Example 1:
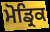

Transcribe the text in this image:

ਮੋਡ੍ਰਿਕ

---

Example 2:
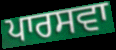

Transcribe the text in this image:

ਪਾਰਸਵਾ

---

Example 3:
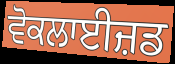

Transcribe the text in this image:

ਵੋਕਲਾਈਜ਼ਡ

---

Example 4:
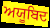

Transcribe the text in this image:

ਅਯੂਬਿਦ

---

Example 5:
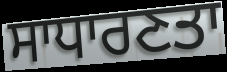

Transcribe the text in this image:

ਸਾਧਾਰਣਤਾ